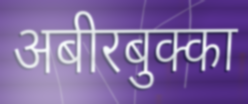
अबीरबुक्का